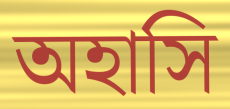
অহাসি